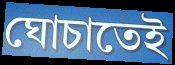
ঘোচাতেই